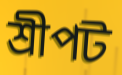
শ্রীপট